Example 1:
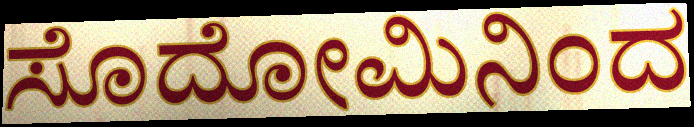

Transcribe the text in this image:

ಸೊದೋಮಿನಿಂದ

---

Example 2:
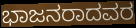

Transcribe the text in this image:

ಭಾಜನರಾದವರ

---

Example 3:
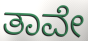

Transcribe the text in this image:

ತಾವೇ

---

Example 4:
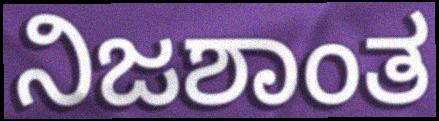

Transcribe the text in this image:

ನಿಜಶಾಂತ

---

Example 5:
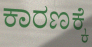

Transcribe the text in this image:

ಕಾರಣಕ್ಕೆ